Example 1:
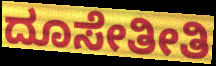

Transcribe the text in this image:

ದೂಸೇತೀತಿ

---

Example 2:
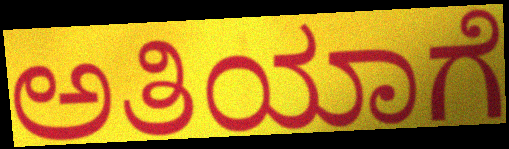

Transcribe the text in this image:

ಅತಿಯಾಗೆ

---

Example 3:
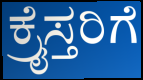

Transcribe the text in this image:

ಕ್ರೈಸ್ತರಿಗೆ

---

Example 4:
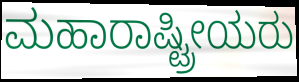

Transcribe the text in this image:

ಮಹಾರಾಷ್ಟ್ರೀಯರು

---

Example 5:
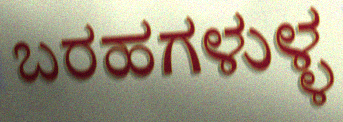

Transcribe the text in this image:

ಬರಹಗಳುಳ್ಳ